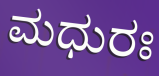
ಮಧುರಃ